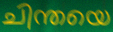
ചിന്തയെ